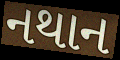
નથાન